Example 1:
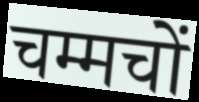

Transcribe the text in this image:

चम्मचों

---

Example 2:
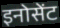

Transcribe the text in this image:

इनोसेंट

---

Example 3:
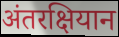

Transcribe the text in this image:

अंतरक्षियान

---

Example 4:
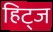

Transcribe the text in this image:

हिट्ज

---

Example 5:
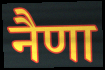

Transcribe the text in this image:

नैणा